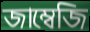
জাম্বেজি